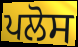
ਪਲੋਸ